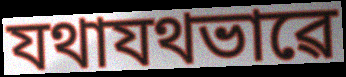
যথাযথভাৱে